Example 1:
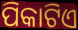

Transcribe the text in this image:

ପିକାଟିଏ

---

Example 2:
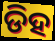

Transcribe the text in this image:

ଡିହ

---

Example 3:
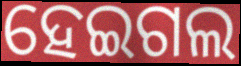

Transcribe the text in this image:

ହେଇଗଲ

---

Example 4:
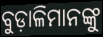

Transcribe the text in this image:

ବୁଡ଼ାଳିମାନଙ୍କୁ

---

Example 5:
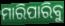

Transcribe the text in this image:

ମାରିପାରିବୁ